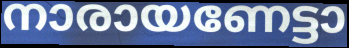
നാരായണേട്ടാ